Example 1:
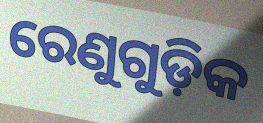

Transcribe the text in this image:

ରେଣୁଗୁଡ଼ିକ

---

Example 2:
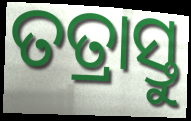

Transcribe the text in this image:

ତତ୍ରାସ୍ତୁ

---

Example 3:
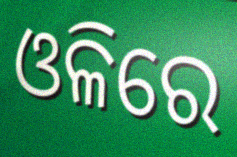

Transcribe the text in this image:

ଓଳିରେ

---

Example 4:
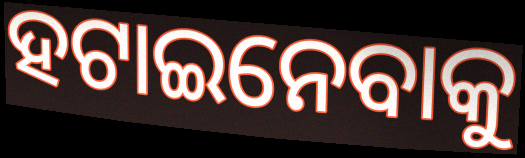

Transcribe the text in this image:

ହଟାଇନେବାକୁ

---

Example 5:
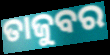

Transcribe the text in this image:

ତାଜୁବର